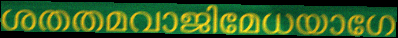
ശതതമവാജിമേധയാഗേ